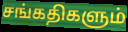
சங்கதிகளும்